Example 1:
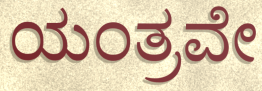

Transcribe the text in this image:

ಯಂತ್ರವೇ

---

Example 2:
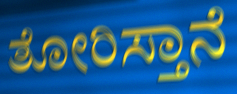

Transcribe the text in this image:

ತೋರಿಸ್ತಾನೆ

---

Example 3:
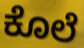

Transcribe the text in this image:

ಕೊಲೆ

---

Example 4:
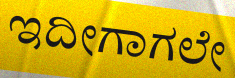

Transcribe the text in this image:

ಇದೀಗಾಗಲೇ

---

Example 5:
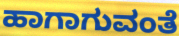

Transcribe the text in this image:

ಹಾಗಾಗುವಂತೆ